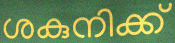
ശകുനിക്ക്